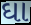
ઘા